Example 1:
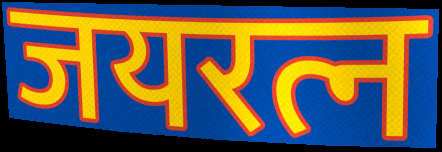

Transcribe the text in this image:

जयरत्न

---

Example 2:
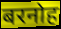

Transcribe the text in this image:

बरनोह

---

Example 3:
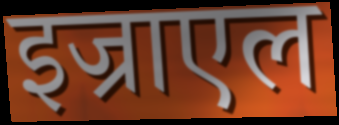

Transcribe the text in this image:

इज्राएल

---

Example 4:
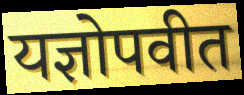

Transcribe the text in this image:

यज्ञोपवीत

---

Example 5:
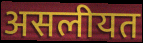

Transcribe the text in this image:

असलीयत